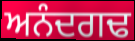
ਅਨੰਦਗਢ